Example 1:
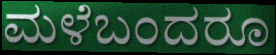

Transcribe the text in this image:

ಮಳೆಬಂದರೂ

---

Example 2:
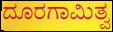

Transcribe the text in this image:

ದೂರಗಾಮಿತ್ವ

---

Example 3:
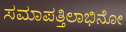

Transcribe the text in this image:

ಸಮಾಪತ್ತಿಲಾಭಿನೋ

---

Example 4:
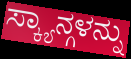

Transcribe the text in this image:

ಸ್ಕ್ಯಾನ್ಗಳನ್ನು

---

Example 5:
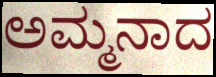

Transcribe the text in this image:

ಅಮ್ಮನಾದ